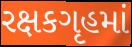
રક્ષકગૃહમાં